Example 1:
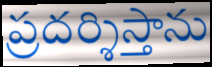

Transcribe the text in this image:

ప్రదర్శిస్తాను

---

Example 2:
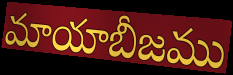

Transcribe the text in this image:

మాయాబీజము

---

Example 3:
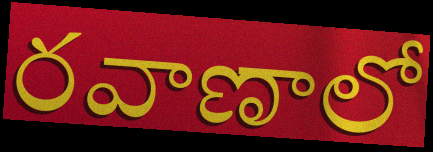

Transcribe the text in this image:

రవాణాలో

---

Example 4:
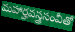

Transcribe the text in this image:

మహార్హవస్త్రసంవీతో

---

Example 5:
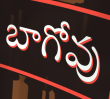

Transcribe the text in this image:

బాగోవు